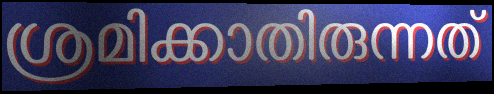
ശ്രമിക്കാതിരുന്നത്